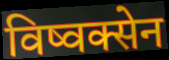
विष्वक्सेन